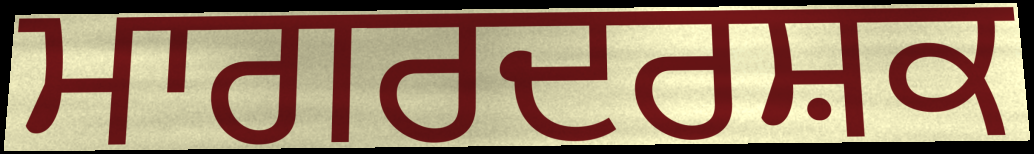
ਮਾਗਰਦਰਸ਼ਕ